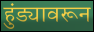
हुंड्यावरून